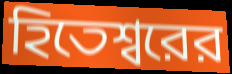
হিতেশ্বরের